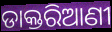
ଡାକ୍ତରିଆଣୀ